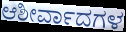
ಆಶೀರ್ವಾದಗಳ